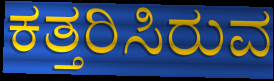
ಕತ್ತರಿಸಿರುವ